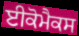
ਈਕੋਮੈਕਸ